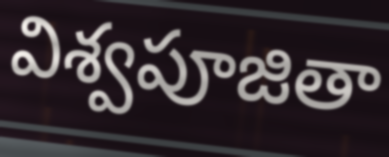
విశ్వపూజితా